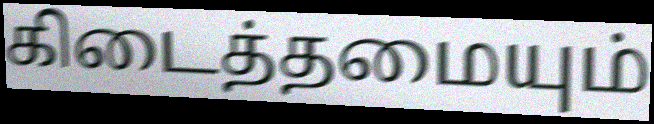
கிடைத்தமையும்